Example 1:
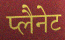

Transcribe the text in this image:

प्लैनेट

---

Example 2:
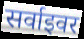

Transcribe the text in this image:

सर्वाइवर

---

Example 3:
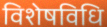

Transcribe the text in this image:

विशेषविधि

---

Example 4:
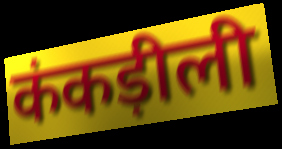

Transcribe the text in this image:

कंकड़ीली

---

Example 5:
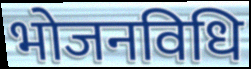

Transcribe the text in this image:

भोजनविधि